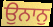
ਉਨਾਨੁ